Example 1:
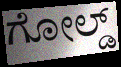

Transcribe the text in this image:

ಗೋಲ್ಡ್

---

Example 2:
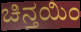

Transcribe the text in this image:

ಚಿನ್ತಯಿಂ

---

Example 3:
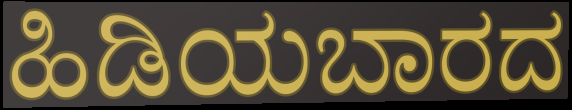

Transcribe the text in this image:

ಹಿಡಿಯಬಾರದ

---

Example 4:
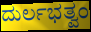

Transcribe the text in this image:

ದುರ್ಲಭತ್ವಂ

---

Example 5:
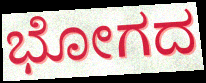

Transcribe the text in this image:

ಭೋಗದ